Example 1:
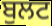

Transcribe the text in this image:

ਬੁਲਟ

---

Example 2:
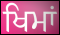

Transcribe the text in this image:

ਖਿਮਾਂ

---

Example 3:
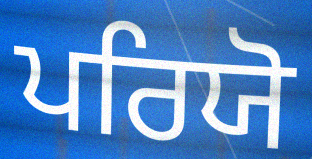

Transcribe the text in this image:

ਪਰਿਯੋ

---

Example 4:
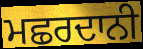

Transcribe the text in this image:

ਮਛਰਦਾਨੀ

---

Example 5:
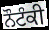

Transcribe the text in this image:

ਨੌਟੰਕੀ